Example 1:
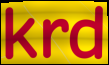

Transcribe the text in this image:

krd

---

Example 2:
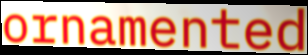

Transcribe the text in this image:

ornamented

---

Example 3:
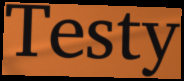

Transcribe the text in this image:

Testy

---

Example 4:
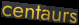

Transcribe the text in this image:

centaurs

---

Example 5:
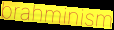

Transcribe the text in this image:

brahminism